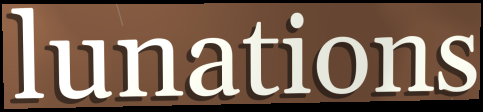
lunations